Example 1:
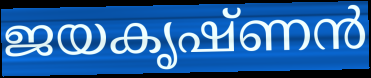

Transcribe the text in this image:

ജയകൃഷ്ണൻ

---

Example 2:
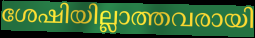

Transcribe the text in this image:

ശേഷിയില്ലാത്തവരായി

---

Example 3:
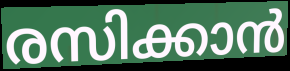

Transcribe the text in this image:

രസിക്കാൻ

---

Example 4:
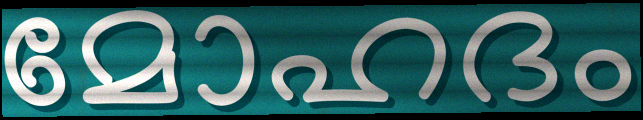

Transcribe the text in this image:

മോഹദം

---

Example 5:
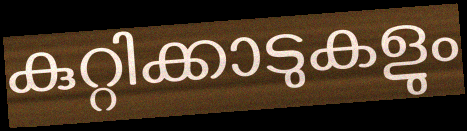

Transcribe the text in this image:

കുറ്റിക്കാടുകളും